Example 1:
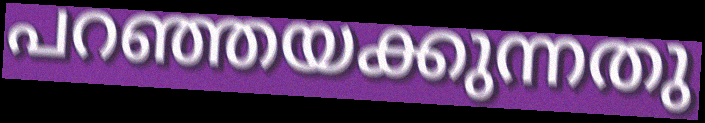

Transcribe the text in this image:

പറഞ്ഞയക്കുന്നതു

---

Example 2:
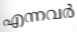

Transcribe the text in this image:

എന്നവർ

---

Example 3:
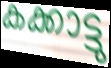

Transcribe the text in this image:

കക്കാട്ടു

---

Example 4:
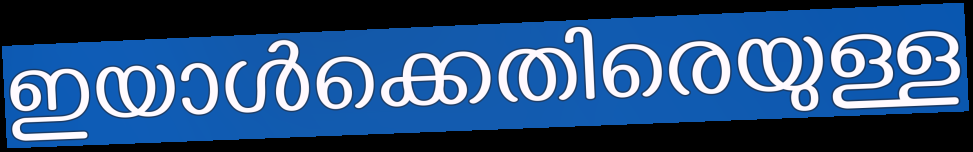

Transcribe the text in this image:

ഇയാൾക്കെതിരെയുള്ള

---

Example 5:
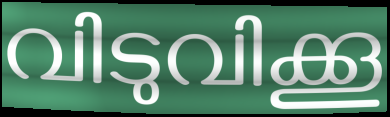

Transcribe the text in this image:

വിടുവിക്കൂ